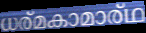
ധര്മകാമാര്ഥ